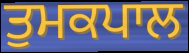
ਤੁਮਕਪਾਲ